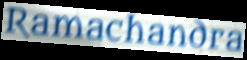
Ramachandra